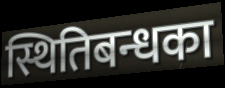
स्थितिबन्धका